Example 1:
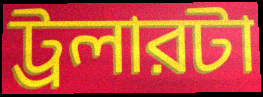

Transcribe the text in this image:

ট্রলারটা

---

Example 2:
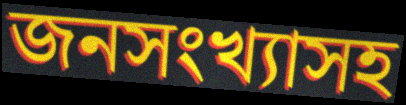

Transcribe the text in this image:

জনসংখ্যাসহ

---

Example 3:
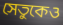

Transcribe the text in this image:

সেতুকেও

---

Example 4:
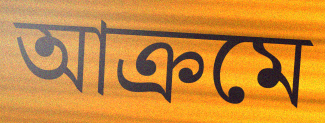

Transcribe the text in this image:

আক্রমে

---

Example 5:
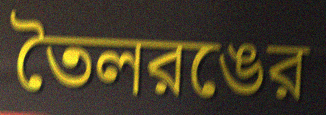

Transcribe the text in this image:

তৈলরঙের